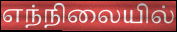
எந்நிலையில்